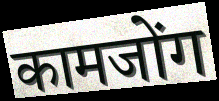
कामजोंग